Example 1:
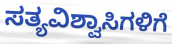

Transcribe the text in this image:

ಸತ್ಯವಿಶ್ವಾಸಿಗಳಿಗೆ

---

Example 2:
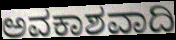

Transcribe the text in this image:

ಅವಕಾಶವಾದಿ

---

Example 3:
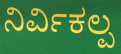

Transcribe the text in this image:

ನಿರ್ವಿಕಲ್ಪ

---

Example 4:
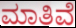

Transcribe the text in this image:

ಮಾತಿವೆ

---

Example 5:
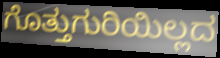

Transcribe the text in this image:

ಗೊತ್ತುಗುರಿಯಿಲ್ಲದ